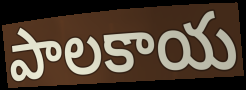
పాలకాయ